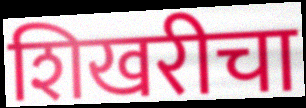
शिखरीचा